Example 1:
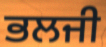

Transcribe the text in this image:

ਭਲਜੀ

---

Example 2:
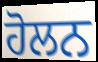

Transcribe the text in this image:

ਹੋਲਨ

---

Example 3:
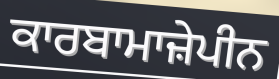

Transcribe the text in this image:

ਕਾਰਬਾਮਾਜ਼ੇਪੀਨ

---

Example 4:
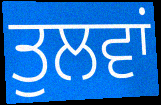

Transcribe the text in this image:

ਤੁਲਵਾਂ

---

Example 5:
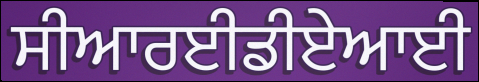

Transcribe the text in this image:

ਸੀਆਰਈਡੀਏਆਈ